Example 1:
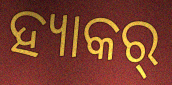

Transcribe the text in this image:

ହ୍ୟାକର୍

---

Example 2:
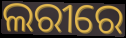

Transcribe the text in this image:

ଲରୀରେ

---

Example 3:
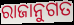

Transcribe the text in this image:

ରାଜାନୁଗତ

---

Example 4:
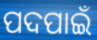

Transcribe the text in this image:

ପଦପାଇଁ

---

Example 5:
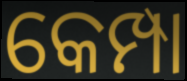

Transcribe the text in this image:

କେମ୍ପା